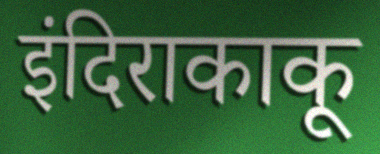
इंदिराकाकू